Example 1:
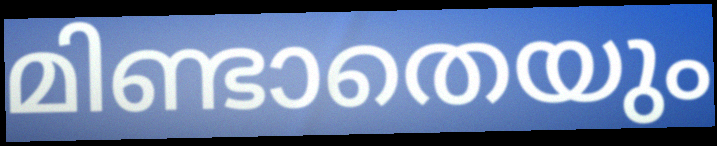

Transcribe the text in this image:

മിണ്ടാതെയും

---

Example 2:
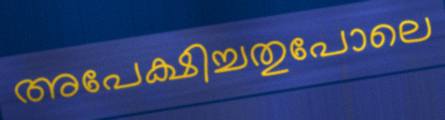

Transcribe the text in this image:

അപേക്ഷിച്ചതുപോലെ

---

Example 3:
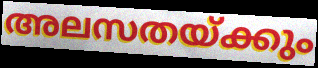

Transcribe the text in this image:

അലസതയ്ക്കും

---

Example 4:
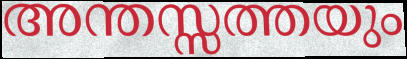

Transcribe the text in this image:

അന്തസ്സത്തയും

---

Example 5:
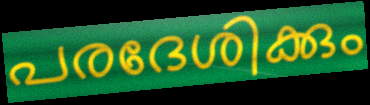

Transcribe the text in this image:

പരദേശിക്കും